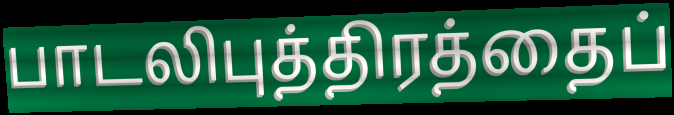
பாடலிபுத்திரத்தைப்